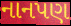
નાનપણ